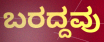
ಬರದ್ದವು